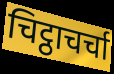
चिट्ठाचर्चा